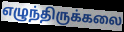
எழுந்திருக்கலை